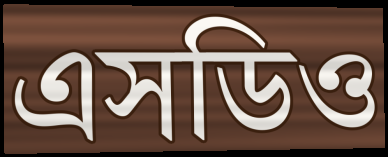
এসডিও